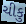
ચીકુ